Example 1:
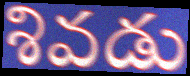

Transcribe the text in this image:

శివడు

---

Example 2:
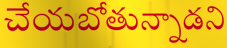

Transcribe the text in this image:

చేయబోతున్నాడని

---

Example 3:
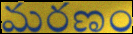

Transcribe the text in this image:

మరణం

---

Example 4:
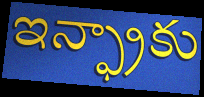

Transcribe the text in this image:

ఇన్ఫ్రాకు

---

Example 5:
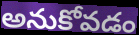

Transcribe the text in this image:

అనుకోవడం